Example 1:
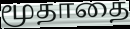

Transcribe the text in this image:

மூதாதை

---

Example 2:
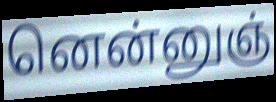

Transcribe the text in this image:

னென்னுஞ்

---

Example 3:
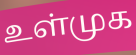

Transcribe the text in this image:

உள்முக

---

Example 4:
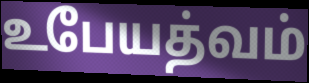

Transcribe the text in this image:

உபேயத்வம்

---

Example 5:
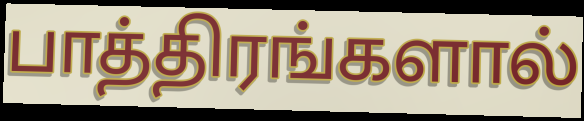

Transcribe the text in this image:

பாத்திரங்களால்